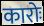
कारोः